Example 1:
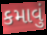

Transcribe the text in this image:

કમાવું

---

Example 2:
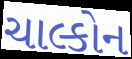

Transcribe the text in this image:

ચાલ્કોન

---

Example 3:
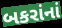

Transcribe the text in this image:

બકરાંનાં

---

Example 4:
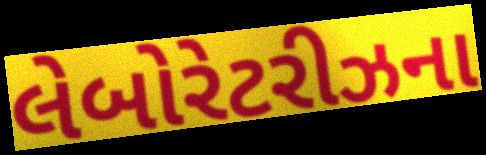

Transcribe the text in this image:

લેબોરેટરીઝના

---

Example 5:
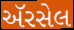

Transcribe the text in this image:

ઍરસેલ